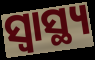
ସ୍ୱାସ୍ଥ୍ୟ